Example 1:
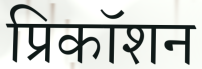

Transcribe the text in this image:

प्रिकॉशन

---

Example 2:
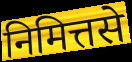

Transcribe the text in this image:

निमित्तसे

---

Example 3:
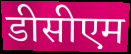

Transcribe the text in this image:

डीसीएम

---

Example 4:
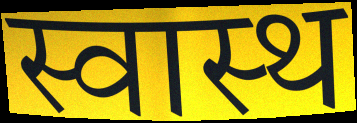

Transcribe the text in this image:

स्वास्थ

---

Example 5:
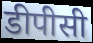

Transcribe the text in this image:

डीपीसी